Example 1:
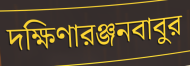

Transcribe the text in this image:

দক্ষিণারঞ্জনবাবুর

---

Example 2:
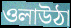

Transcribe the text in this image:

ওলাউঠা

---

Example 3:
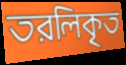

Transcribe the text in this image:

তরলিকৃত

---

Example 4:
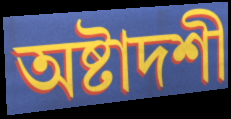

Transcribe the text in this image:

অষ্টাদশী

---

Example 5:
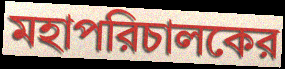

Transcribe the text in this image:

মহাপরিচালকের